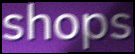
shops